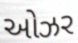
ઓઝર